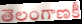
తెలంగాణకీ